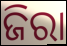
ଜିରା